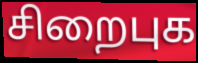
சிறைபுக